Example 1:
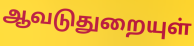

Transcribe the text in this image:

ஆவடுதுறையுள்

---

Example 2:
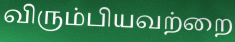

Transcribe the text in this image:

விரும்பியவற்றை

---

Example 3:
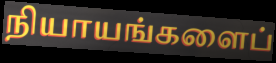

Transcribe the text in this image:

நியாயங்களைப்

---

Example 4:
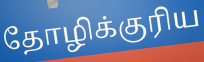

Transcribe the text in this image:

தோழிக்குரிய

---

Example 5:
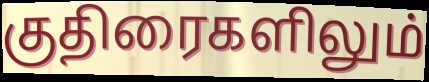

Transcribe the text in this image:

குதிரைகளிலும்